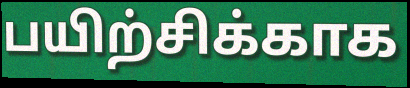
பயிற்சிக்காக